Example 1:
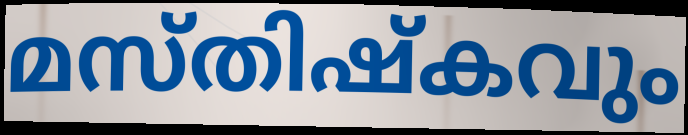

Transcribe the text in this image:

മസ്തിഷ്കവും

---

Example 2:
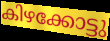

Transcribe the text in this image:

കിഴക്കോട്ടു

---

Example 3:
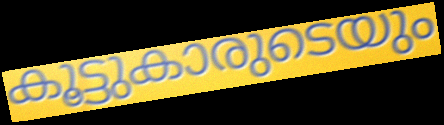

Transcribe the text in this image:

കൂട്ടുകാരുടെയും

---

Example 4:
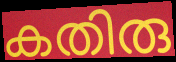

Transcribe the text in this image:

കതിരു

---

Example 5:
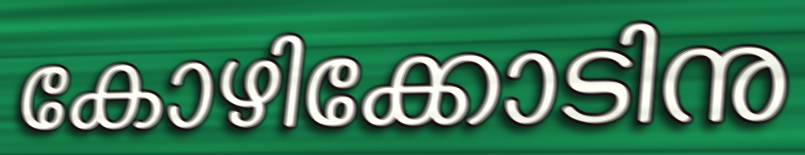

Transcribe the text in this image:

കോഴിക്കോടിനു